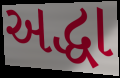
અદ્ધા